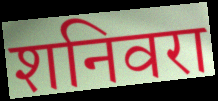
शनिवरा